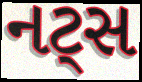
નટ્સ